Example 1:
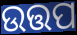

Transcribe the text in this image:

ଉତ୍ତପ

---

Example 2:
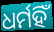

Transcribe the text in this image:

ଧର୍ମହିଁ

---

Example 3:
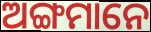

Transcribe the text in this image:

ଅଙ୍ଗମାନେ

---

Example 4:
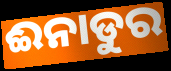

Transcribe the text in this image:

ଈନାଡୁର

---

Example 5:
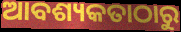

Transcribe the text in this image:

ଆବଶ୍ୟକତାଠାରୁ